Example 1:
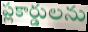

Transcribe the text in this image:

ప్లకార్డులను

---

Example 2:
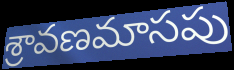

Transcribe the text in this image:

శ్రావణమాసపు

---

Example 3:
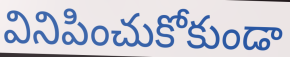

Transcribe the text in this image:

వినిపించుకోకుండా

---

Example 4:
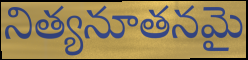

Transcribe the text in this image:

నిత్యనూతనమై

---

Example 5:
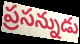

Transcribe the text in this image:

ప్రసన్నుడు